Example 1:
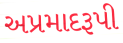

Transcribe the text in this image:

અપ્રમાદરૂપી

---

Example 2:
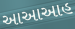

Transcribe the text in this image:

આઆઆહ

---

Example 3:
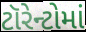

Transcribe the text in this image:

ટૉરેન્ટોમાં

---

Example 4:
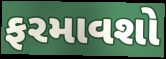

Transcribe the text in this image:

ફરમાવશો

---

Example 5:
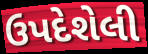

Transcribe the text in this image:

ઉપદેશેલી